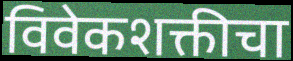
विवेकशक्तीचा